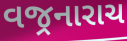
વજ્રનારાચ